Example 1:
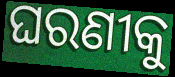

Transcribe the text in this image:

ଘରଣୀକୁ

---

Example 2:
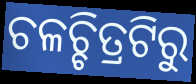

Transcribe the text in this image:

ଚଳଚ୍ଚିତ୍ରଟିରୁ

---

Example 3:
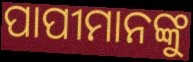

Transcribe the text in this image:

ପାପୀମାନଙ୍କୁ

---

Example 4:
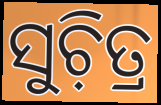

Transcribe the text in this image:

ସୁଚ଼ିତ୍ର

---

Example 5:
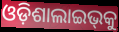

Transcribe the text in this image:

ଓଡ଼ିଶାଲାଇଭ୍‌କୁ